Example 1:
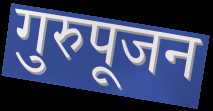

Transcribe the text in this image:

गुरुपूजन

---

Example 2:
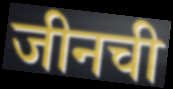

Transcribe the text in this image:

जीनची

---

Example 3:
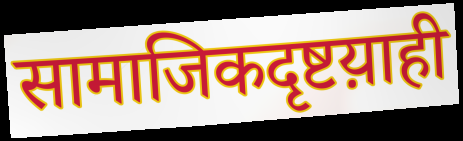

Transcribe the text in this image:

सामाजिकदृष्टय़ाही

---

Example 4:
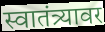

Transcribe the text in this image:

स्वातंत्र्यावर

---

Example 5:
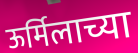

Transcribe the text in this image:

ऊर्मिलाच्या